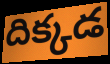
దిక్కడ